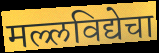
मल्लविद्येचा